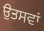
ਉਤਸਵਾਂ